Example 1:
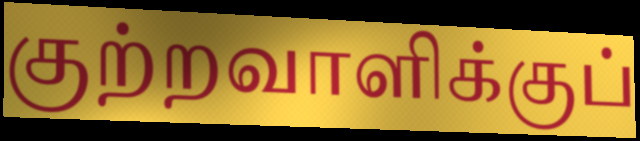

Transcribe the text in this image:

குற்றவாளிக்குப்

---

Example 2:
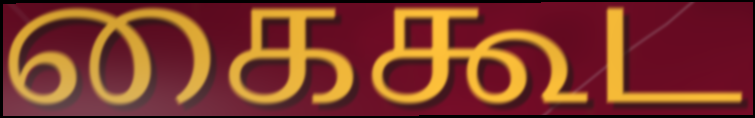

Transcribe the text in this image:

கைகூட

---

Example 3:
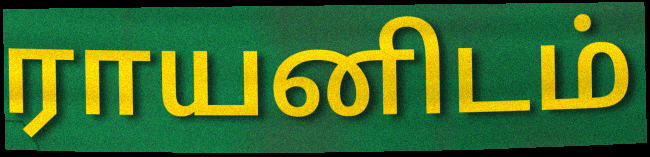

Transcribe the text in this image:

ராயனிடம்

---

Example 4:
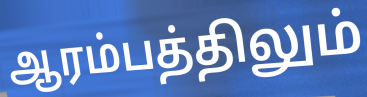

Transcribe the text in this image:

ஆரம்பத்திலும்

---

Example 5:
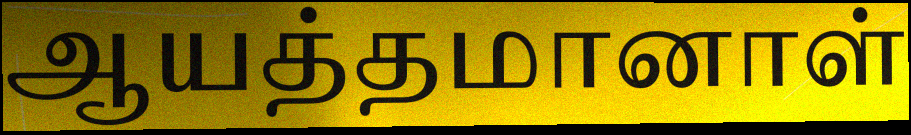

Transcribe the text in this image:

ஆயத்தமானாள்